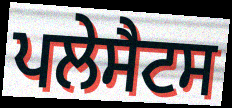
ਪਲੇਸੈਟਸ